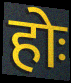
होः